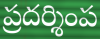
ప్రదర్శింప